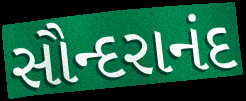
સૌન્દરાનંદ